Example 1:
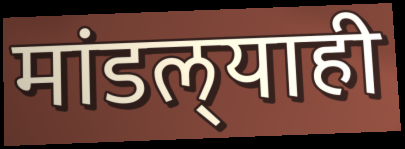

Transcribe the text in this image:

मांडल्याही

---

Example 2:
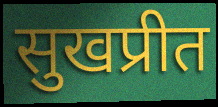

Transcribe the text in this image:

सुखप्रीत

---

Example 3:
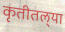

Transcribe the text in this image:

कृतीतल्या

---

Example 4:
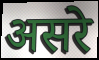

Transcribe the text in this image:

असरे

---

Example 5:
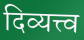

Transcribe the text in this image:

दिव्यत्त्व